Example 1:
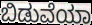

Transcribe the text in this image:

ಬಿಡುವೆಯಾ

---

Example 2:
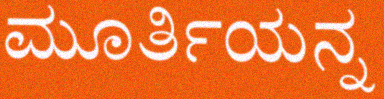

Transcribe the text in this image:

ಮೂರ್ತಿಯನ್ನ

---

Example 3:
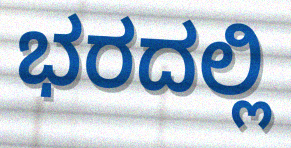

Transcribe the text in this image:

ಭರದಲ್ಲಿ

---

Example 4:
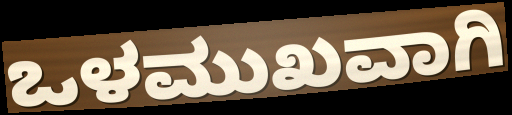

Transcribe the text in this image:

ಒಳಮುಖವಾಗಿ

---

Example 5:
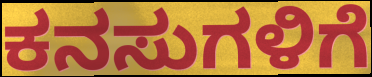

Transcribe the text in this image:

ಕನಸುಗಳಿಗೆ